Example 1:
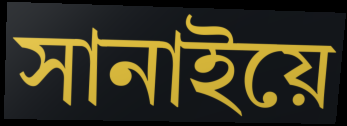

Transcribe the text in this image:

সানাইয়ে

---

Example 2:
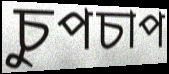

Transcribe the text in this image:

চুপচাপ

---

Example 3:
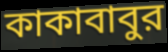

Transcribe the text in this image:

কাকাবাবুর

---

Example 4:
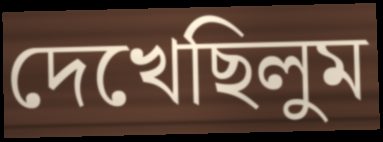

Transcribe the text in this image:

দেখেছিলুম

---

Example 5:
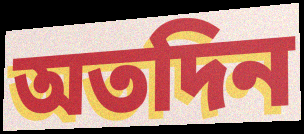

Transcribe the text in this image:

অতদিন